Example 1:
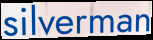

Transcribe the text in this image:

silverman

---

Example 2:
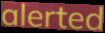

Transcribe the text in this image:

alerted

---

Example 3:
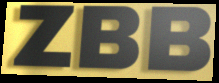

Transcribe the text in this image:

ZBB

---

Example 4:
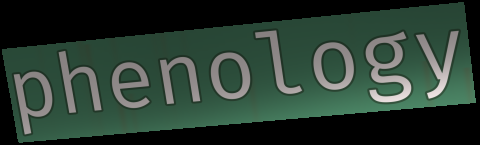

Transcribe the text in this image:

phenology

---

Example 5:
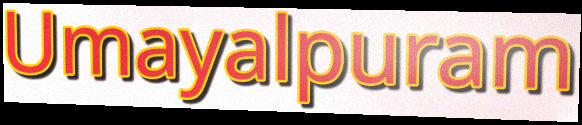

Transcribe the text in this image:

Umayalpuram